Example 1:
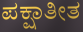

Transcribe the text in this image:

ಪಕ್ಷಾತೀತ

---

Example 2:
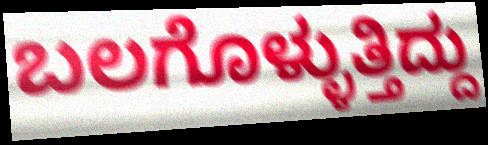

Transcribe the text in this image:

ಬಲಗೊಳ್ಳುತ್ತಿದ್ದು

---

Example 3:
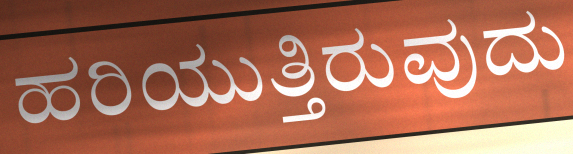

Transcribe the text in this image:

ಹರಿಯುತ್ತಿರುವುದು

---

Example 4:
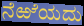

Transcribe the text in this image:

ನೆಱೆಯದು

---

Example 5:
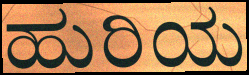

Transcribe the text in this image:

ಹುರಿಯ